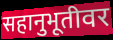
सहानुभूतीवर